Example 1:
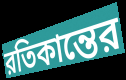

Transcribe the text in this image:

রতিকান্তের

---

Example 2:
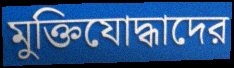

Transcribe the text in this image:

মুক্তিযোদ্ধাদের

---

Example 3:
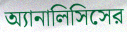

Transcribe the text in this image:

অ্যানালিসিসের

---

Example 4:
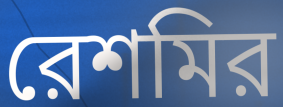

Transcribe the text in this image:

রেশমির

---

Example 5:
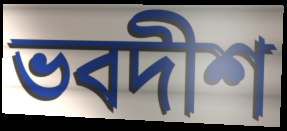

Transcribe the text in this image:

ভবদীশ